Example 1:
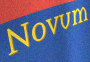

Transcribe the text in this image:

Novum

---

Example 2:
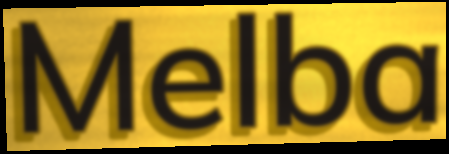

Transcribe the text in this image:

Melba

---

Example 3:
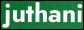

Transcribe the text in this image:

juthani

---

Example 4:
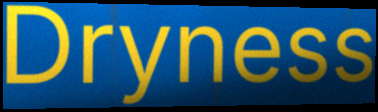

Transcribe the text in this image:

Dryness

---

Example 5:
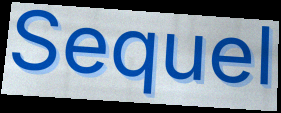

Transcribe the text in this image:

Sequel